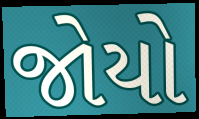
જોયો